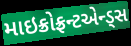
માઇક્રોફ્રન્ટએન્ડ્સ